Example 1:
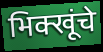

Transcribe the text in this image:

भिक्खूंचे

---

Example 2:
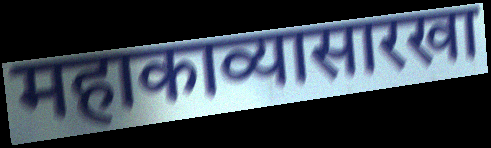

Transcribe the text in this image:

महाकाव्यासारखा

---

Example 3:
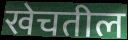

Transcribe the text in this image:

खेचतील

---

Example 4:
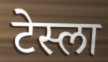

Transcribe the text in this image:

टेस्ला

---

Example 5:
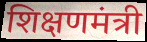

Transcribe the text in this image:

शिक्षणमंत्री